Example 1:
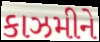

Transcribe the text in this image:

કાઝમીને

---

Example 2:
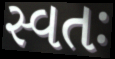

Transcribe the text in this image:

સ્વતઃ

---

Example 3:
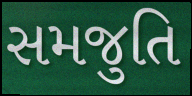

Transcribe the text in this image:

સમજુતિ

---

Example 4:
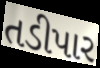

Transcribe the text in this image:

તડીપાર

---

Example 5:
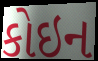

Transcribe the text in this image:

કોઇન